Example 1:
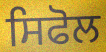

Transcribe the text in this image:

ਸਿਫੋਲ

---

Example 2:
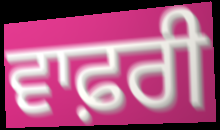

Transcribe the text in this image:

ਵਾਫ਼ਰੀ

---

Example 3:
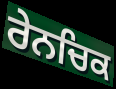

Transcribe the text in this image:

ਰੇਨਚਿਕ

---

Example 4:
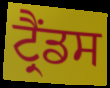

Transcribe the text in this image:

ਟ੍ਰੈਂਡਸ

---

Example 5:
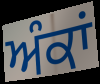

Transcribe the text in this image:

ਅੰਕਾਂ